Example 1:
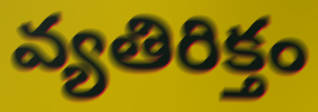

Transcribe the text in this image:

వ్యతిరిక్తం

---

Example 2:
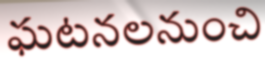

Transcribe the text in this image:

ఘటనలనుంచి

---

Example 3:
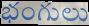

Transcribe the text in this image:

భంగులు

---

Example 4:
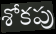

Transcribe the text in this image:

శోకపు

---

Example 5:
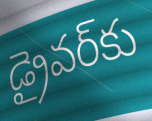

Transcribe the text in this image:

డ్రైవర్‌కు